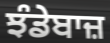
ਝੰਡੇਬਾਜ਼